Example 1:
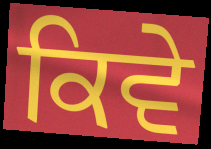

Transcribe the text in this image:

ਕਿਵੇ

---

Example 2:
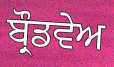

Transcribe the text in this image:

ਬ੍ਰੌਡਵੇਅ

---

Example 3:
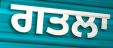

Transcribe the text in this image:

ਗਤਲਾ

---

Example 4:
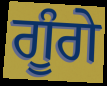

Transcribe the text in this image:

ਗੂੰਗੇ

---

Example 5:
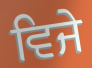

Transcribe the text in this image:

ਵਿਜੇ